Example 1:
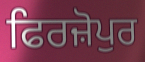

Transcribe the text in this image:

ਫਿਰਜ਼ੋਪੁਰ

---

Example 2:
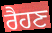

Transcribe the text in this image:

ਰੈਹਣ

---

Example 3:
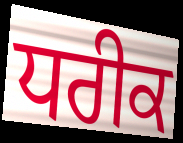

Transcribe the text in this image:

ਧਰੀਕ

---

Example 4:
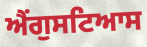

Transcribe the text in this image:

ਐਂਗੁਸਟਿਆਸ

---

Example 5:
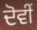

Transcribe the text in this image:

ਦੋਵੀਂ